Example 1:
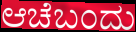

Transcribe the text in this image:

ಆಚೆಬಂದು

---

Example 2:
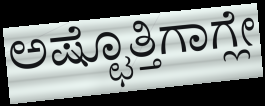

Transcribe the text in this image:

ಅಷ್ಟೊತ್ತಿಗಾಗ್ಲೇ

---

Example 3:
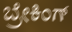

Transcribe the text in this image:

ಬ್ರೇಕಿಂಗ್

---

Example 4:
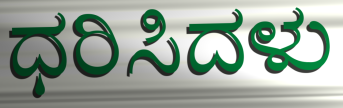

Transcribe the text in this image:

ಧರಿಸಿದಳು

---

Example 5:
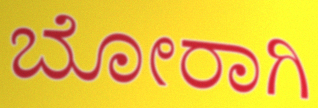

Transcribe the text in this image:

ಬೋರಾಗಿ